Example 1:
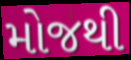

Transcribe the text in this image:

મોજથી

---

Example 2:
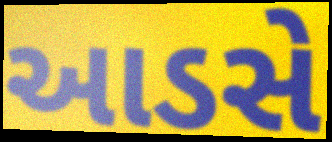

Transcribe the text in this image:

આડસે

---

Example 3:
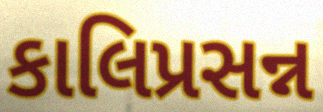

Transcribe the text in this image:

કાલિપ્રસન્ન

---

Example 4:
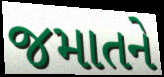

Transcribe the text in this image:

જમાતને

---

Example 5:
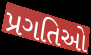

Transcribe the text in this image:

પ્રગતિઓ